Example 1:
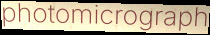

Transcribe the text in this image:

photomicrograph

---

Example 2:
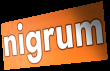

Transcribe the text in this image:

nigrum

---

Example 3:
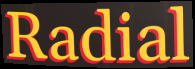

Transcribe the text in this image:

Radial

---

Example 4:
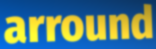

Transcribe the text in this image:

arround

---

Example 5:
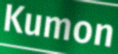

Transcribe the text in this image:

Kumon